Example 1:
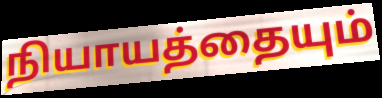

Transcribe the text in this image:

நியாயத்தையும்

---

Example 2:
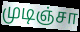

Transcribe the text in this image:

முடிஞ்சா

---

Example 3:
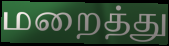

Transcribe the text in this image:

மறைத்து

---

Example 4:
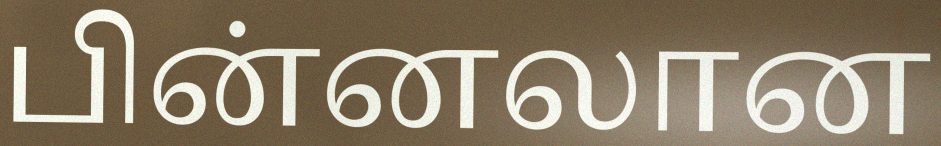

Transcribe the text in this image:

பின்னலான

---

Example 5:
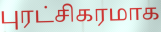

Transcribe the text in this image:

புரட்சிகரமாக